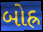
બોહ્ર